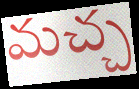
మచ్చ